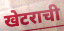
खेटराची